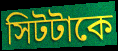
সিটটাকে